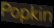
Popkin